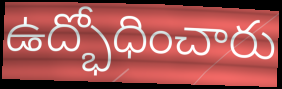
ఉద్భోధించారు